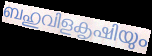
ബഹുവിളകൃഷിയും